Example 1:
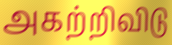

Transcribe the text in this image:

அகற்றிவிடு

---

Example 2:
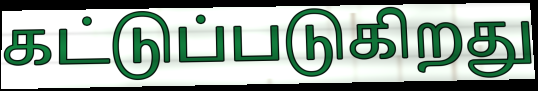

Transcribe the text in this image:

கட்டுப்படுகிறது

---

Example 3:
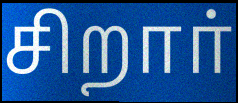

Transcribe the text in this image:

சிறார்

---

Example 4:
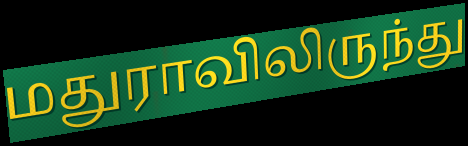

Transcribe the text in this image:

மதுராவிலிருந்து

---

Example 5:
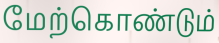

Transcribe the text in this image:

மேற்கொண்டும்